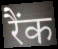
रैंक